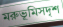
মরুভূমিসদৃশ